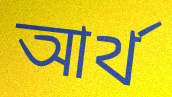
আর্থ